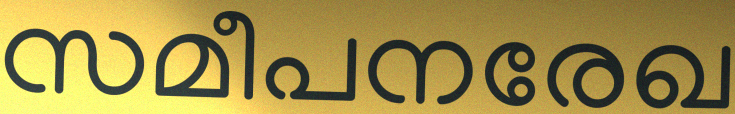
സമീപനരേഖ